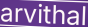
arvithal